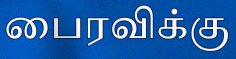
பைரவிக்கு